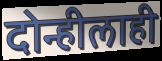
दोन्हीलाही